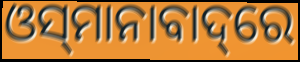
ଓସ୍‌ମାନାବାଦ୍‌ରେ